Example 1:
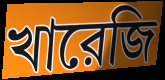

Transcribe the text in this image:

খারেজি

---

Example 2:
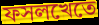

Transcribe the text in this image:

ফসলখেতে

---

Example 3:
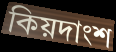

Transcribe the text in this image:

কিয়দাংশ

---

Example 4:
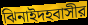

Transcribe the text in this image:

ঝিনাইদহবাসীর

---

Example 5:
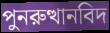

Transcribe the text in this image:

পুনরুত্থানবিদ